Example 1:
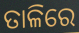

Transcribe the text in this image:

ତାଳିରେ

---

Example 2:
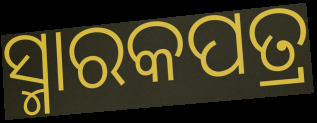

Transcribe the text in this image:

ସ୍ମାରକପତ୍ର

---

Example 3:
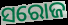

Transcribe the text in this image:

ସରୋଜ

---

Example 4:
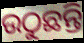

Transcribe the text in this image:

ଉଠୁଛନ୍ତି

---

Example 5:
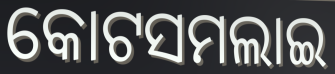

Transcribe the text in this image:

କୋଟସମଲାଇ